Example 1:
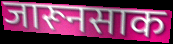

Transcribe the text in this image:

जारूनसाक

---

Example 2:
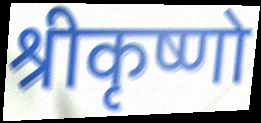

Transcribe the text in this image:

श्रीकृष्णो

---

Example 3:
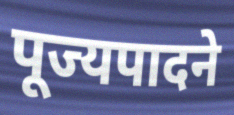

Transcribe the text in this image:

पूज्यपादने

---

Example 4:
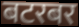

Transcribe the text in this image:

बटरबर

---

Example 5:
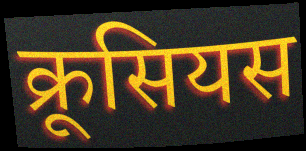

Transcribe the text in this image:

क्रूसियस